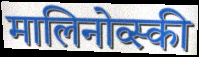
मालिनोव्स्की